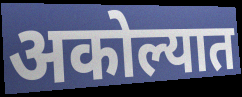
अकोल्यात